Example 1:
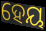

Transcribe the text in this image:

ହେୟ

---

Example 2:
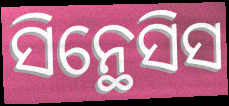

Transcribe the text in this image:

ସିନ୍ଥେସିସ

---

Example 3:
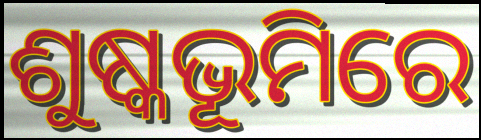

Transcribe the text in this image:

ଶୁଷ୍କଭୂମିରେ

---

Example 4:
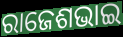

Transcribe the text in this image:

ରାଜେଶଭାଇ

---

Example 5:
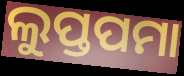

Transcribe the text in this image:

ଲୁପ୍ତପମା